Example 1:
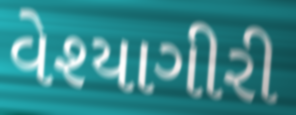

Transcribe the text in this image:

વેશ્યાગીરી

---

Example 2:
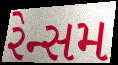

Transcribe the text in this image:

રેન્સમ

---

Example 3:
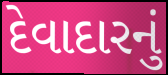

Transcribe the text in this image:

દેવાદારનું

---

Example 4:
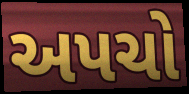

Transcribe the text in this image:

અપચો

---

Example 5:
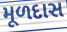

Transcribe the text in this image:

મૂળદાસ